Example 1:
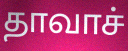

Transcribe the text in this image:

தாவாச்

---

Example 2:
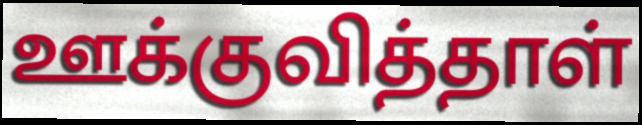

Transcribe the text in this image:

ஊக்குவித்தாள்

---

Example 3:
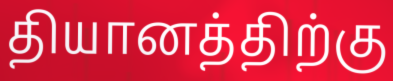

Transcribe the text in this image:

தியானத்திற்கு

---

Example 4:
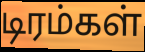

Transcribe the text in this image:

டிரம்கள்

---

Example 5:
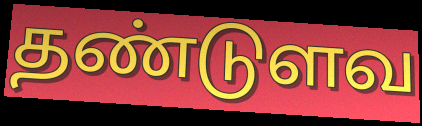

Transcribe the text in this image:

தண்டுளவ